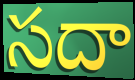
సదా